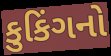
કુકિંગનો